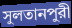
সুলতানপুরী